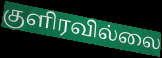
குளிரவில்லை